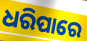
ଧରିପାରେ